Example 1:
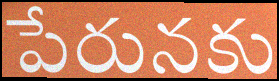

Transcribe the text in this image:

పేరునకు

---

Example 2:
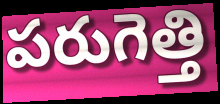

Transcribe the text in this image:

పరుగెత్తి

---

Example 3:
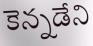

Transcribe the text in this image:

కెన్నడేని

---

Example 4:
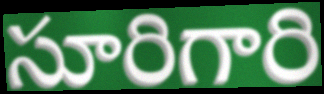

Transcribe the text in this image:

సూరిగారి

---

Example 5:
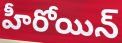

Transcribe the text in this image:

హీరోయిన్